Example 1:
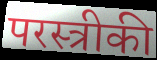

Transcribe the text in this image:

परस्त्रीकी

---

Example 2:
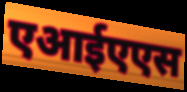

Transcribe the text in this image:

एआईएएस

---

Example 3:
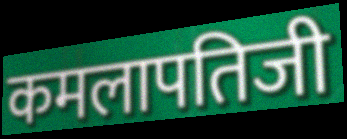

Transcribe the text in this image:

कमलापतिजी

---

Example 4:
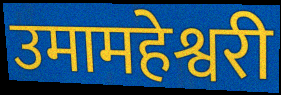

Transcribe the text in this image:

उमामहेश्वरी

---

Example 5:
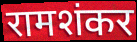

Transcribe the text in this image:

रामशंकर